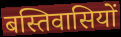
बस्तिवासियों